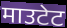
माउटेट